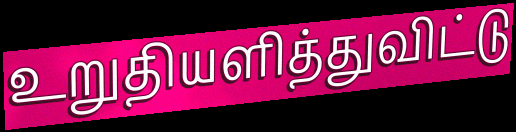
உறுதியளித்துவிட்டு